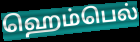
ஹெம்பெல்